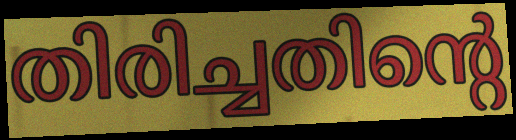
തിരിച്ചതിന്റെ